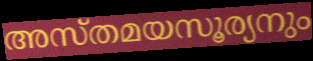
അസ്തമയസൂര്യനും